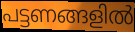
പട്ടണങ്ങളിൽ